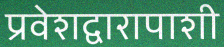
प्रवेशद्वारापाशी